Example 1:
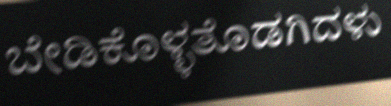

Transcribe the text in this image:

ಬೇಡಿಕೊಳ್ಳತೊಡಗಿದಳು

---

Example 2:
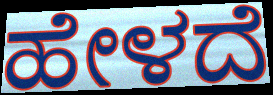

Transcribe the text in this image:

ಹೇಳದೆ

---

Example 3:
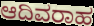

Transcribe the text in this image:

ಆದಿವರಾಹ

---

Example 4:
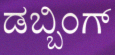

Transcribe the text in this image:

ಡಬ್ಬಿಂಗ್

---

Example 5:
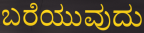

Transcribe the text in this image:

ಬರೆಯುವುದು